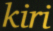
kiri